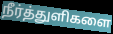
நீர்த்துளிகளை